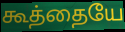
கூத்தையே